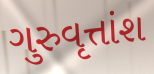
ગુરુવૃત્તાંશ